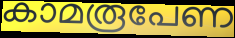
കാമരൂപേണ